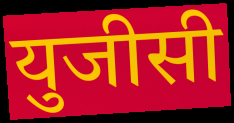
युजीसी